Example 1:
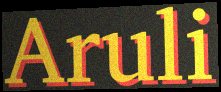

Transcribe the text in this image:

Aruli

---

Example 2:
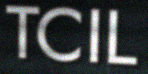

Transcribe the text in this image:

TCIL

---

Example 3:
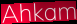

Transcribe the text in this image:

Ahkam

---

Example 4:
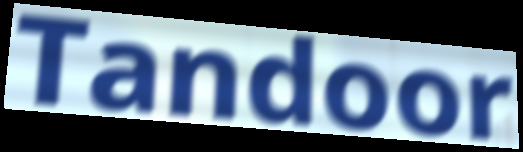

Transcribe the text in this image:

Tandoor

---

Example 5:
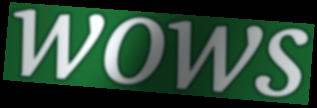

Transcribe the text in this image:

wows